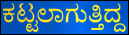
ಕಟ್ಟಲಾಗುತ್ತಿದ್ದ